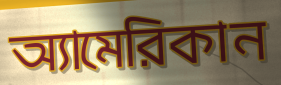
অ্যামেরিকান